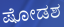
ಷೋಡಶ